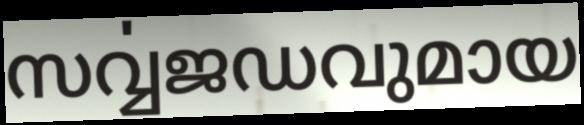
സൎവ്വജഡവുമായ